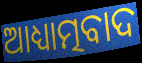
ଆଧ୍ୟାତ୍ମବାଦ